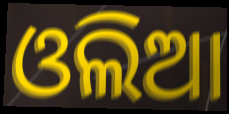
ଓଲିଆ